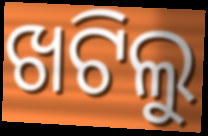
ଖଟିଲୁ